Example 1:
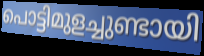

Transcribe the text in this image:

പൊട്ടിമുളച്ചുണ്ടായി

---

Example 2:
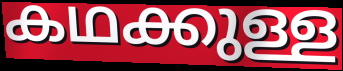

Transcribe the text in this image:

കഥക്കുള്ള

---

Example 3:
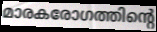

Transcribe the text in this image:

മാരകരോഗത്തിന്റെ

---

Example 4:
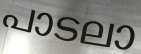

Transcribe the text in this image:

പാടലാ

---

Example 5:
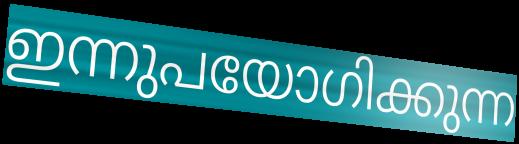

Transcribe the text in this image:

ഇന്നുപയോഗിക്കുന്ന